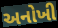
અનોખી